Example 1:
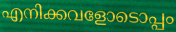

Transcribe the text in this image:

എനിക്കവളോടൊപ്പം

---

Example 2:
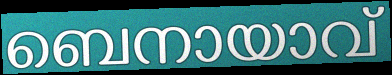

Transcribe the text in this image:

ബെനായാവ്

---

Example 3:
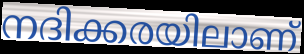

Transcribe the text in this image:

നദിക്കരയിലാണ്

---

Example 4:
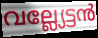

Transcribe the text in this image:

വല്ല്യേട്ടൻ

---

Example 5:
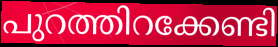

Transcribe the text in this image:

പുറത്തിറക്കേണ്ടി